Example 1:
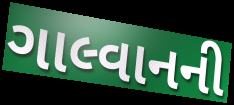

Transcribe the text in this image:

ગાલ્વાનની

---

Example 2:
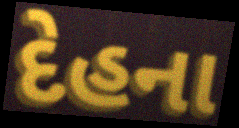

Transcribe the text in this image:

દેહના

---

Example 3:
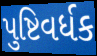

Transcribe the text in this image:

પુષ્ટિવર્ધક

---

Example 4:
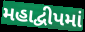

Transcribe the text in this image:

મહાદ્વીપમાં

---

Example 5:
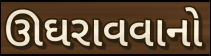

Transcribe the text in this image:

ઊઘરાવવાનો